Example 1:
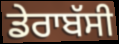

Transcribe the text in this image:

ਡੇਰਾਬੱਸੀ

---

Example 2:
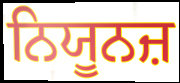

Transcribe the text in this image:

ਨਿਯੂਨਜ਼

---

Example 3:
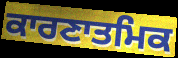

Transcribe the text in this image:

ਕਾਰਣਾਤਮਿਕ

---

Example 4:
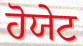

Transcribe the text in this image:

ਹੋਯੇਟ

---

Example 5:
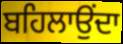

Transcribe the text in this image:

ਬਹਿਲਾਉਂਦਾ